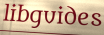
libguides